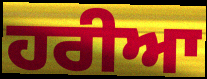
ਹਰੀਆ